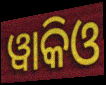
ୱାକିଓ